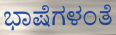
ಭಾಷೆಗಳಂತೆ